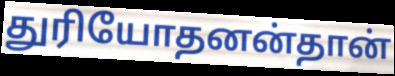
துரியோதனன்தான்